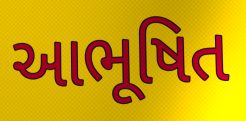
આભૂષિત